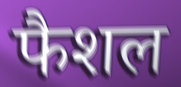
फैशल